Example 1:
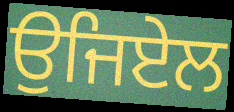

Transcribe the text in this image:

ਉਜਿਏਲ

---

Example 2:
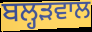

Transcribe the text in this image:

ਬਲ੍ਹੜਵਾਲ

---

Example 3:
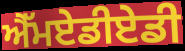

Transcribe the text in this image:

ਐੱਮਏਡੀਏਡੀ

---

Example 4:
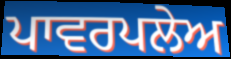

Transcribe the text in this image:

ਪਾਵਰਪਲੇਅ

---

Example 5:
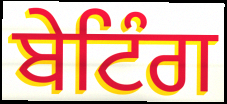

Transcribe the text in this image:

ਬੇਟਿੰਗ